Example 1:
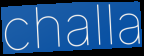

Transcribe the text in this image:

challa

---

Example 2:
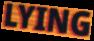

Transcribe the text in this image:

LYING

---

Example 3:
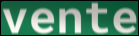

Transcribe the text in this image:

vente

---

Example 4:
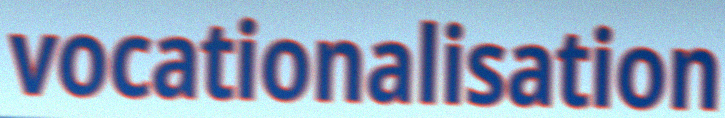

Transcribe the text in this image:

vocationalisation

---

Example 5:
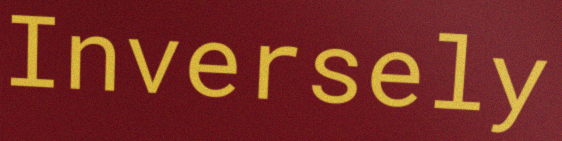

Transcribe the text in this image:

Inversely